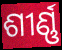
ଶୀର୍ଣ୍ଣ